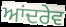
ਆਂਦਰੇਵ